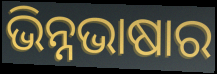
ଭିନ୍ନଭାଷାର